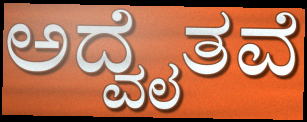
ಅದ್ವೈತವೆ